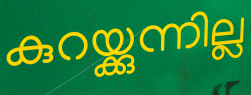
കുറയ്ക്കുന്നില്ല